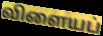
விளையப்